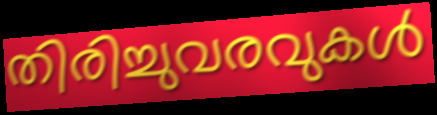
തിരിച്ചുവരവുകൾ